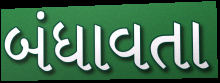
બંધાવતા